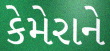
કેમેરાને